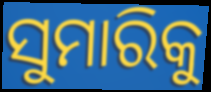
ସୁମାରିକୁ